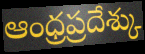
ఆంధ్రప్రదేశ్కు